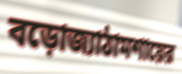
বড়োজ্যাঠামশায়ের